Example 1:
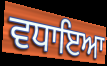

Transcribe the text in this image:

ਵਧਾਇਆ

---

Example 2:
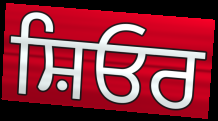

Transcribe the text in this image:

ਸ਼ਿਓਰ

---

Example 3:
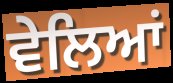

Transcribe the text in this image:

ਵੇਲਿਆਂ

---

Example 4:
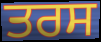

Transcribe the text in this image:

ਤਰਸ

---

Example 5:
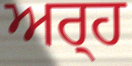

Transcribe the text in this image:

ਅਰ੍‍ਹ